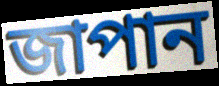
জাপান